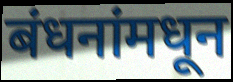
बंधनांमधून